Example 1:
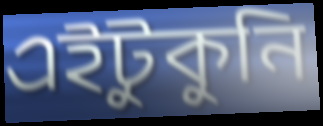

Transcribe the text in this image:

এইটুকুনি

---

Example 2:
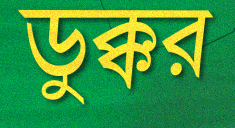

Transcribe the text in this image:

ডুক্কর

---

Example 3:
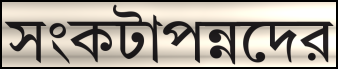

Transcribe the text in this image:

সংকটাপন্নদের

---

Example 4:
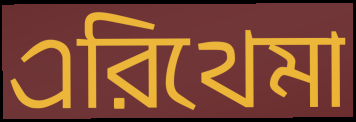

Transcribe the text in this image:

এরিথেমা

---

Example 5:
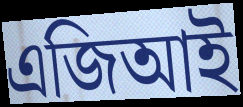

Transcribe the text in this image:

এজিআই